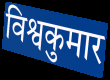
विश्वकुमार